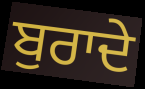
ਬੁਰਾਦੇ